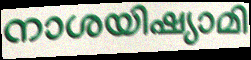
നാശയിഷ്യാമി